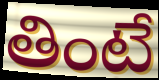
తింటే